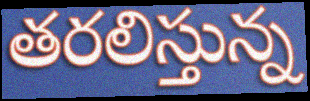
తరలిస్తున్న